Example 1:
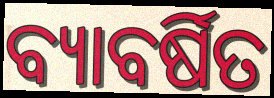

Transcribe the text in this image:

ବ୍ୟାବର୍ଷିତ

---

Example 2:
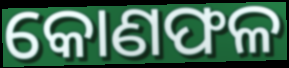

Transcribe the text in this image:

କୋଣଫଳ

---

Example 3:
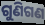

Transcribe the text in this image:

ଗୁଣିଗଣ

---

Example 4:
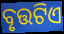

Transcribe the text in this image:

ବୃତ୍ତଟିଏ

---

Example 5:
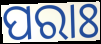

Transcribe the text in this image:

ପରାଃ